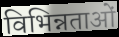
विभिन्नताओं